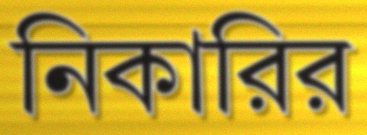
নিকারির